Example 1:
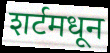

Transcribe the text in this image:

शर्टमधून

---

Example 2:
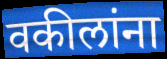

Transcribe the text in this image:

वकीलांना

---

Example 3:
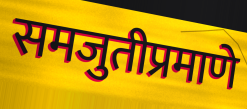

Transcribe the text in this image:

समजुतीप्रमाणे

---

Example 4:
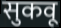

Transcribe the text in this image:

सुकवू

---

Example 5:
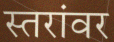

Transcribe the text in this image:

स्तरांवर